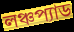
লঞ্চপ্যাড